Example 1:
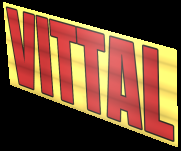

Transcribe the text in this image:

VITTAL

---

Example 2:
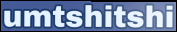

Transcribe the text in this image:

umtshitshi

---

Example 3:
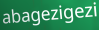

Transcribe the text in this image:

abagezigezi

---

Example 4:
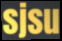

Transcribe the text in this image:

sjsu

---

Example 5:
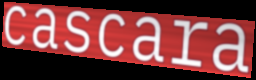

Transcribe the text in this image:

cascara